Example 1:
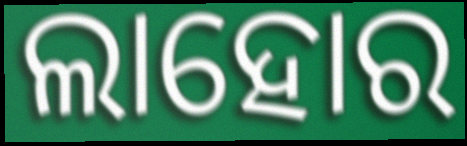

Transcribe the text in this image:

ଲାହୋର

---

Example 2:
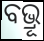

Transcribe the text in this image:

ବଭ୍ରୂ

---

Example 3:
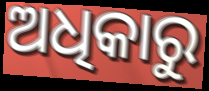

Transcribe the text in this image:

ଅଧିକାରୁ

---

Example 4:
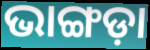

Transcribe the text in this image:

ଭାଙ୍ଗଡ଼ା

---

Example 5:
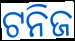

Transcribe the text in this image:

ଟନିଜ